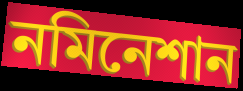
নমিনেশান